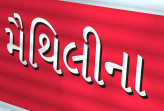
મૈથિલીના